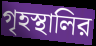
গৃহস্থালির